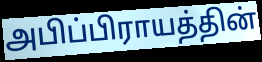
அபிப்பிராயத்தின்